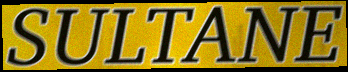
SULTANE